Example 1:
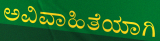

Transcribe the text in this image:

ಅವಿವಾಹಿತೆಯಾಗಿ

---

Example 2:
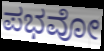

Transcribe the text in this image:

ಪಭವೋ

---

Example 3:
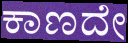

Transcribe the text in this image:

ಕಾಣದೇ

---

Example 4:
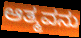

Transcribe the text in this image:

ಆತ್ಮವನು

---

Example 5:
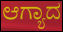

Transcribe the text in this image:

ಆಗ್ಯಾದ